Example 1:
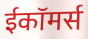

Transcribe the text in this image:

ईकॉमर्स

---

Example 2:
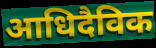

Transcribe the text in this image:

आधिदैविक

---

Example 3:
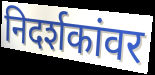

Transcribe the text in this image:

निदर्शकांवर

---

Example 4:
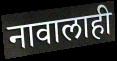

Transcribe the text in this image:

नावालाही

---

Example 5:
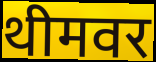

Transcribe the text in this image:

थीमवर